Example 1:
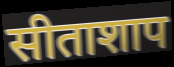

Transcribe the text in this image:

सीताशाप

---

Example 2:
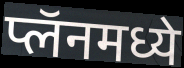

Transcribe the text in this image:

प्लॅनमध्ये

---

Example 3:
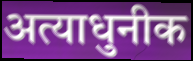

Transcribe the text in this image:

अत्याधुनीक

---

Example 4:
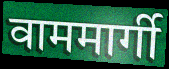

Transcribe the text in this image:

वाममार्गी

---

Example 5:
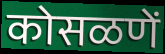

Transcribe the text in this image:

कोसळणें